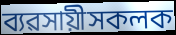
ব্যৱসায়ীসকলক